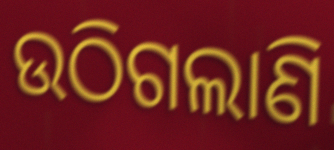
ଉଠିଗଲାଣି